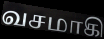
வசமாகி